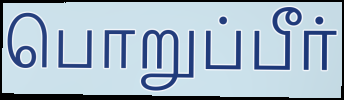
பொறுப்பீர்